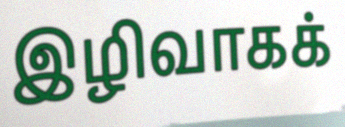
இழிவாகக்